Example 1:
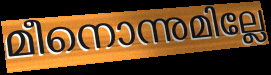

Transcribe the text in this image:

മീനൊന്നുമില്ലേ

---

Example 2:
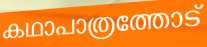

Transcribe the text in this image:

കഥാപാത്രത്തോട്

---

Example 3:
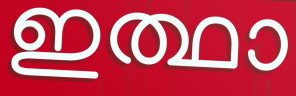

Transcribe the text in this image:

ഇത്ഥാ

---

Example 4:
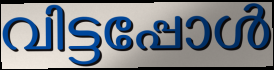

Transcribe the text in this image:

വിട്ടപ്പോൾ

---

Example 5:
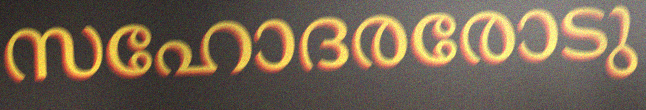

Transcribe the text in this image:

സഹോദരരോടു